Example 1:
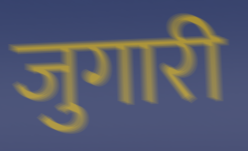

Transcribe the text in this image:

जुगारी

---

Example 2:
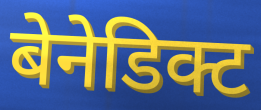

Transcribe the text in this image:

बेनेडिक्ट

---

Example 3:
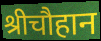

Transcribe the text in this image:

श्रीचौहान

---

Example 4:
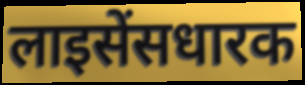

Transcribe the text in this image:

लाइसेंसधारक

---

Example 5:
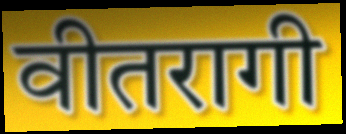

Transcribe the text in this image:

वीतरागी